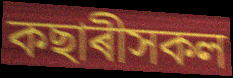
কছাৰীসকল